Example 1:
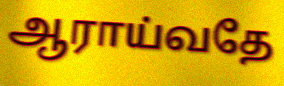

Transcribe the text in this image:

ஆராய்வதே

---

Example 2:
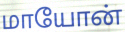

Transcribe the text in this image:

மாயோன்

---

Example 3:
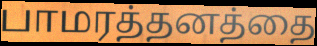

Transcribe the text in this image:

பாமரத்தனத்தை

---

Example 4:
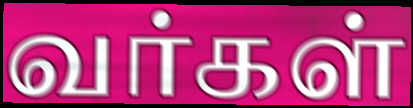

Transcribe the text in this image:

வர்கள்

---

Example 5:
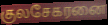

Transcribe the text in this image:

குலசேகரனை